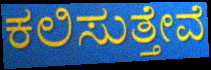
ಕಲಿಸುತ್ತೇವೆ